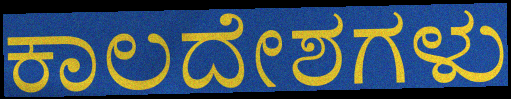
ಕಾಲದೇಶಗಳು